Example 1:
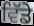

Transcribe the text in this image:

ਵਿੱਡੇ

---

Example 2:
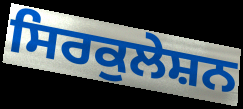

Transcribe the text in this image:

ਸਿਰਕੁਲੇਸ਼ਨ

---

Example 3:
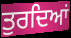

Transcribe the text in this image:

ਤੁਰਦਿਆਂ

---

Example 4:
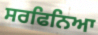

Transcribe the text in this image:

ਸਰਫਿਨਿਆ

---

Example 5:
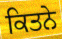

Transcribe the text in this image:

ਕਿਤਨੇ